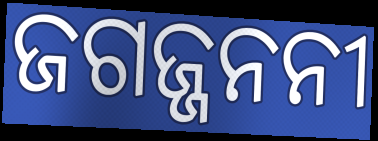
ଜଗଜ୍ଜନନୀ